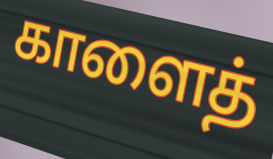
காளைத்